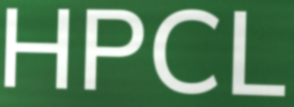
HPCL